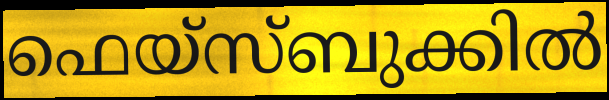
ഫെയ്സ്ബുക്കിൽ